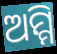
ଅମ୍ମି